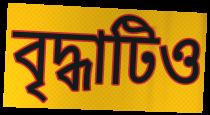
বৃদ্ধাটিও